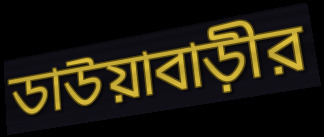
ডাউয়াবাড়ীর